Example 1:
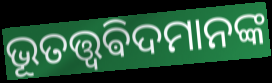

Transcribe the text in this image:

ଭୂତତ୍ତ୍ୱଵିଦମାନଙ୍କ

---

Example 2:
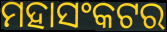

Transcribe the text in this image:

ମହାସଂକଟର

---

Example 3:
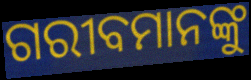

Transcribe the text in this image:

ଗରୀବମାନଙ୍କୁ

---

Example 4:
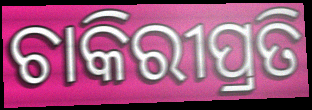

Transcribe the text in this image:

ଚାକିରୀପ୍ରତି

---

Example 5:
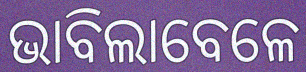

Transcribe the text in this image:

ଭାବିଲାବେଳେ